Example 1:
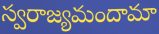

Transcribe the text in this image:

స్వరాజ్యమందామా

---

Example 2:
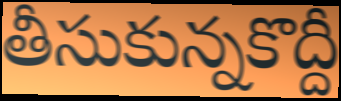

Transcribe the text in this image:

తీసుకున్నకొద్దీ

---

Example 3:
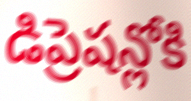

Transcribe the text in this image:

డిప్రెషన్లోకి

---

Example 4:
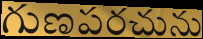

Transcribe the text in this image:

గుణపరచును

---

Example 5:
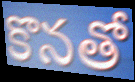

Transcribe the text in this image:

కొనతో